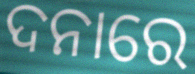
ଦନାରେ